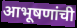
आभूषणांची